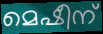
മെഷീന്